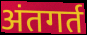
अंतगर्त